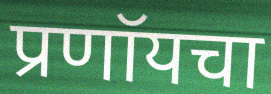
प्रणॉयचा